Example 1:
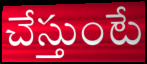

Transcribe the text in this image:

చేస్తుంటే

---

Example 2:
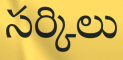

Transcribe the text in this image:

సర్కిలు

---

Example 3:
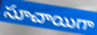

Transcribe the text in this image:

సూచాయిగా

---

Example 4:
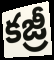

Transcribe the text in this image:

కజ్రీ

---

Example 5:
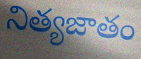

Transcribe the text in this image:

నిత్యజాతం